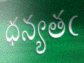
ధన్యతఁ